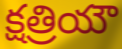
క్షత్రియౌ